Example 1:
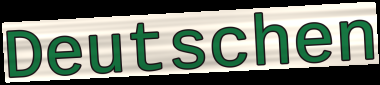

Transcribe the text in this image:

Deutschen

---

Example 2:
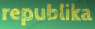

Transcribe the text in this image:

republika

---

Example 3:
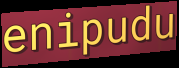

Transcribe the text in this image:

enipudu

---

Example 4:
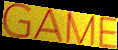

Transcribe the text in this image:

GAME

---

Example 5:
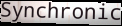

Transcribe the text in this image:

Synchronic